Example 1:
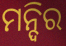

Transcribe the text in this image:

ମନ୍ଦିର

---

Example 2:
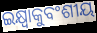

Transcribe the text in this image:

ଇକ୍ଷ୍ୱାକୁବଂଶୀୟ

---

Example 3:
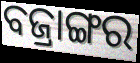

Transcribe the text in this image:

ବଜ୍ରାଙ୍ଗର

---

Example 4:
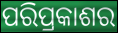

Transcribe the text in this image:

ପରିପ୍ରକାଶର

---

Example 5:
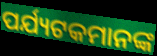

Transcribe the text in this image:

ପର୍ଯ୍ୟଟକମାନଙ୍କ